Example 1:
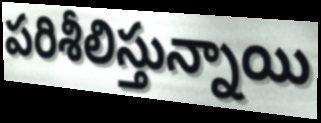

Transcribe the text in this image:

పరిశీలిస్తున్నాయి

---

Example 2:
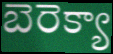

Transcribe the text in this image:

బెరెక్యా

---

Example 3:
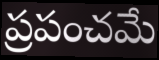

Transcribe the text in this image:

ప్రపంచమే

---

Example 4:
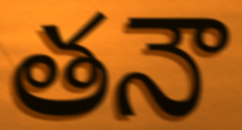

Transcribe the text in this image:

తనౌ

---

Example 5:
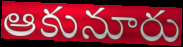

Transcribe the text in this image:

ఆకునూరు